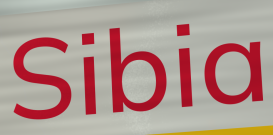
Sibia